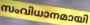
സംവിധാനമായി